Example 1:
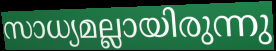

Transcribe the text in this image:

സാധ്യമല്ലായിരുന്നു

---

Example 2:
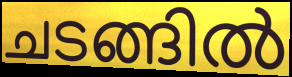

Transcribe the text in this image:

ചടങ്ങിൽ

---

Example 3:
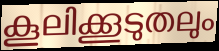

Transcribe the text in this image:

കൂലിക്കൂടുതലും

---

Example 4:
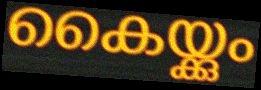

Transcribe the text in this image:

കൈയ്ക്കും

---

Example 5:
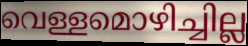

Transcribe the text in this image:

വെള്ളമൊഴിച്ചില്ല